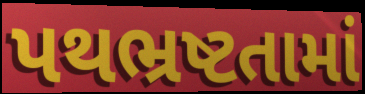
પથભ્રષ્ટતામાં